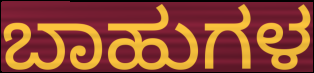
ಬಾಹುಗಳ